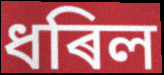
ধৰিল